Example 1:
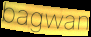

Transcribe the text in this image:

bagwan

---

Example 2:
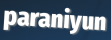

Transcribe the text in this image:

paraniyun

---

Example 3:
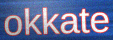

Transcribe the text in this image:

okkate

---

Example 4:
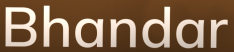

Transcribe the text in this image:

Bhandar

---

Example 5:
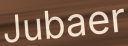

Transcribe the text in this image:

Jubaer